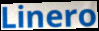
Linero